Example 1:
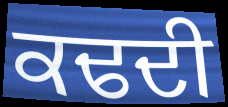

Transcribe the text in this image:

ਕਢਦੀ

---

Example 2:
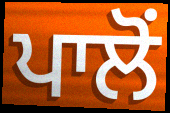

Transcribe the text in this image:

ਪਾਲੋਂ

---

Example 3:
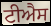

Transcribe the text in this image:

ਟੀਐਸ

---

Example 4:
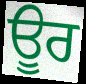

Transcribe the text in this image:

ਊਰ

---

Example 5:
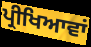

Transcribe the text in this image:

ਪ੍ਰੀਖਿਆਵਾਂ